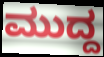
ಮುದ್ದ